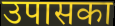
उपासका